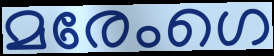
മരേംഗെ